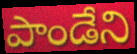
పాండేని